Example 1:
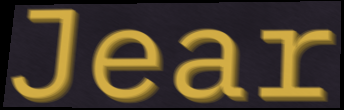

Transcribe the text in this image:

Jear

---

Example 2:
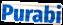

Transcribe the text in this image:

Purabi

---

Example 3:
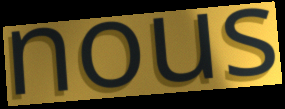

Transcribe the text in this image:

nous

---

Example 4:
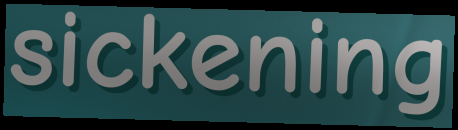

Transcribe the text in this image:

sickening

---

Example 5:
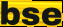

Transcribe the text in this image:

bse